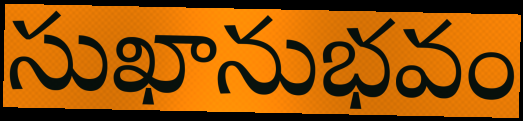
సుఖానుభవం